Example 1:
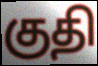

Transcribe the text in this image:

குதி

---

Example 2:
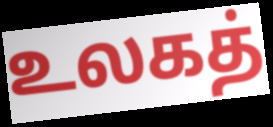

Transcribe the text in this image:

உலகத்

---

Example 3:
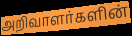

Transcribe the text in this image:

அறிவாளர்களின்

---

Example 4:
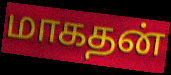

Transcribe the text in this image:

மாகதன்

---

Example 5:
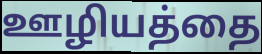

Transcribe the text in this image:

ஊழியத்தை